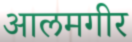
आलमगीर